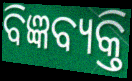
ବିଜ୍ଞବ୍ୟକ୍ତି